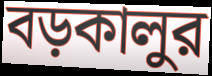
বড়কালুর